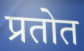
प्रतोत